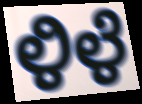
ಳಿಳೆ